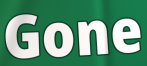
Gone